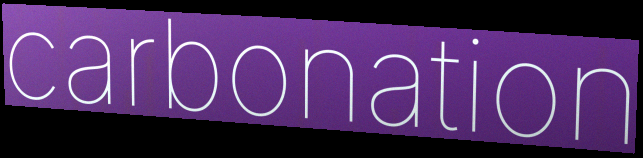
carbonation